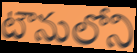
టౌనులోని